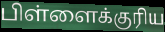
பிள்ளைக்குரிய